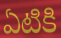
ఏటికి